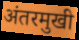
अंतरमुखी